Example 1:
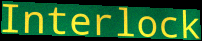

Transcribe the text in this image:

Interlock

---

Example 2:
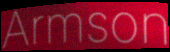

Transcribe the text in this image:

Armson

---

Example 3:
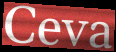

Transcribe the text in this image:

Ceva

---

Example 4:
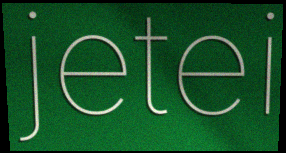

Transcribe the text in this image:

jetei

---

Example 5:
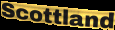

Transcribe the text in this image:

Scottland